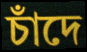
চাঁদে